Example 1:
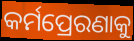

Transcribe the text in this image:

କର୍ମପ୍ରେରଣାକୁ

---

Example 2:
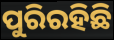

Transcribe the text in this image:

ପୁରିରହିଛି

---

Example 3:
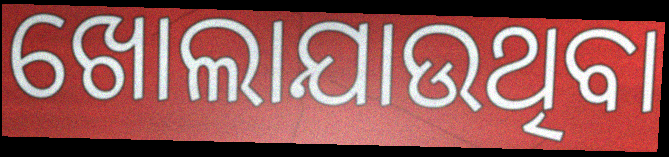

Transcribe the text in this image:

ଖୋଲାଯାଉଥିବା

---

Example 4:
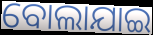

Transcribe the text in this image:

ବୋଲାଯାଇ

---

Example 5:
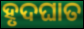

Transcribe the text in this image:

ହୃଦଘାତ